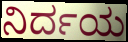
ನಿರ್ದಯ